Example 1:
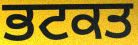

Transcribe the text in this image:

ਭਟਕਤ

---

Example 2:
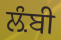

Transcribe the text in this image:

ਲ਼ੰਬੀ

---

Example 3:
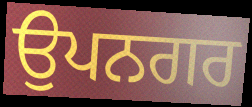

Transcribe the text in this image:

ਉਪਨਗਰ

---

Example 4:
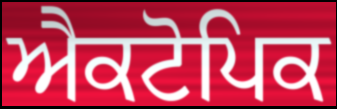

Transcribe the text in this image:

ਐਕਟੋਪਿਕ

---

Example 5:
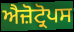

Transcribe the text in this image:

ਐਜ਼ੋਟ੍ਰੋਪਸ